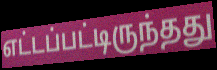
எட்டப்பட்டிருந்தது